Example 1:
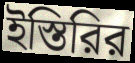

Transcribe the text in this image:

ইস্তিরির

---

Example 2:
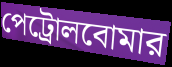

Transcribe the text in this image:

পেট্রোলবোমার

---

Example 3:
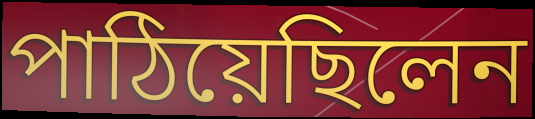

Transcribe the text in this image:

পাঠিয়েছিলেন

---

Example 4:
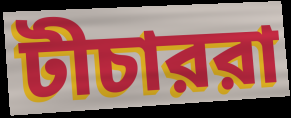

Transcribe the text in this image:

টীচাররা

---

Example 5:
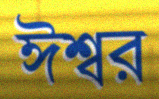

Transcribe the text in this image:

ঈশ্বর